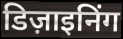
डिज़ाइनिंग